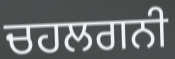
ਚਹਲਗਨੀ